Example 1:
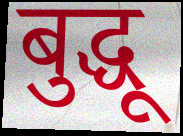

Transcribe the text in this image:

बुद्धू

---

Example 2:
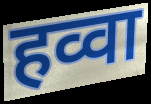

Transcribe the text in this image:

हव्वा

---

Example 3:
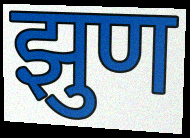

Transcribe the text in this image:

झुण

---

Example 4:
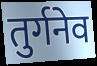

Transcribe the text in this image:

तुर्गनेव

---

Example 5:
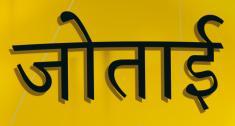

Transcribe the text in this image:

जोताई